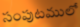
సంపుటములో